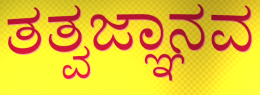
ತತ್ವಜ್ಞಾನವ